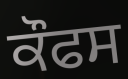
ਕੌਫਸ